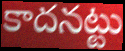
కాదనట్టు